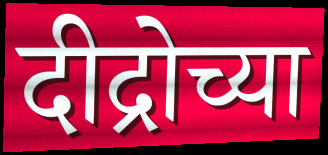
दीद्रोच्या